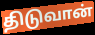
திடுவான்